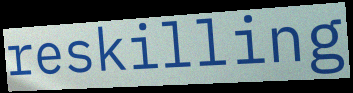
reskilling